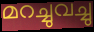
മറച്ചുവച്ചു